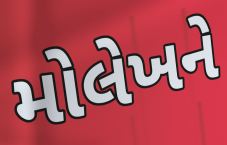
મોલેખને